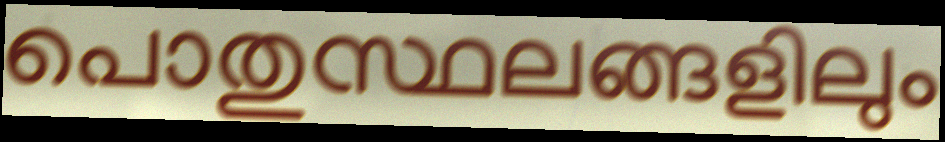
പൊതുസ്ഥലങ്ങളിലും